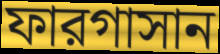
ফারগাসান